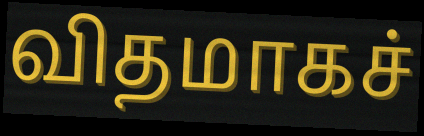
விதமாகச்